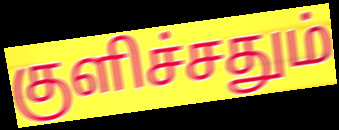
குளிச்சதும்